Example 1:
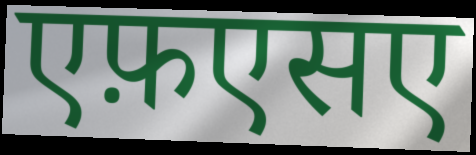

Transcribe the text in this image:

एफ़एसए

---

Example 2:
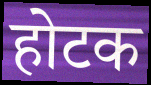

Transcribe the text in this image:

होटक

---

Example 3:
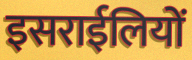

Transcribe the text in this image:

इसराईलियों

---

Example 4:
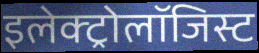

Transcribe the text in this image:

इलेक्ट्रोलॉजिस्ट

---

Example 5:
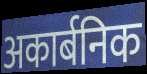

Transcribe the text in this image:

अकार्बनिक